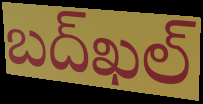
బద్‌ఖల్